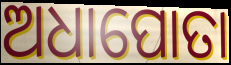
ଅଧାପୋତା